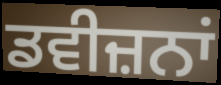
ਡਵੀਜ਼ਨਾਂ